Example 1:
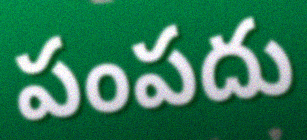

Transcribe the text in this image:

పంపదు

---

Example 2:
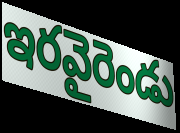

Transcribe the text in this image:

ఇరవైరెండు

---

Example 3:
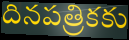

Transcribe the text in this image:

దినపత్రికకు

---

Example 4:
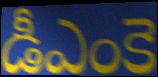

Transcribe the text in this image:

డీఎంకె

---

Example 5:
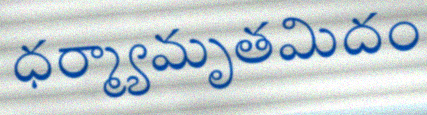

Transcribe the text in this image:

ధర్మ్యామృతమిదం